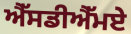
ਐੱਸਡੀਐੱਮਏ